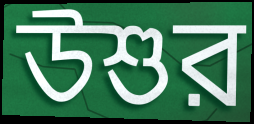
উশুর